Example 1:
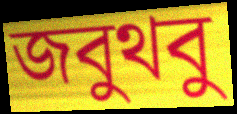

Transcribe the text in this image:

জবুথবু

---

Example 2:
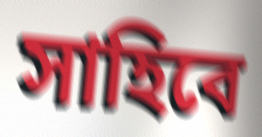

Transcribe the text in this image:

সাহিবে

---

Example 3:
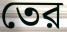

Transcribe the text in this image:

তের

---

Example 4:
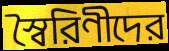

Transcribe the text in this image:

স্বৈরিণীদের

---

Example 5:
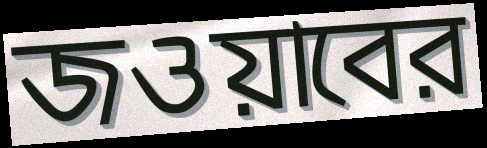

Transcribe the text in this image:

জওয়াবের